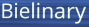
Bielinary